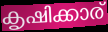
കൃഷിക്കാര്